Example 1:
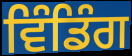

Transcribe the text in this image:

ਵਿੰਡਿੰਗ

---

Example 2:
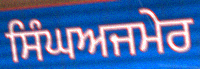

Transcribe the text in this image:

ਸਿੰਘਅਜਮੇਰ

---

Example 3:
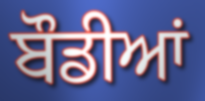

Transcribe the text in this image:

ਬੌਡੀਆਂ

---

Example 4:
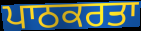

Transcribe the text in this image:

ਪਾਠਕਰਤਾ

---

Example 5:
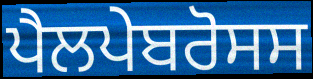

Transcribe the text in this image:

ਪੈਲਪੇਬਰੋਸਸ